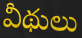
వీథులు